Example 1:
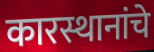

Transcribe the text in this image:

कारस्थानांचे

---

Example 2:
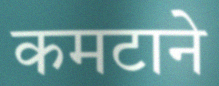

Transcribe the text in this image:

कमटाने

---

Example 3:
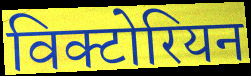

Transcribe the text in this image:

विक्टोरियन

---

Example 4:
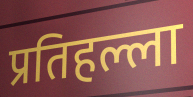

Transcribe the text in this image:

प्रतिहल्ला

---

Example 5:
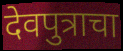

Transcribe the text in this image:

देवपुत्राचा